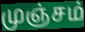
முஞ்சம்